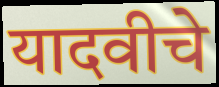
यादवीचे